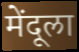
मेंदूला